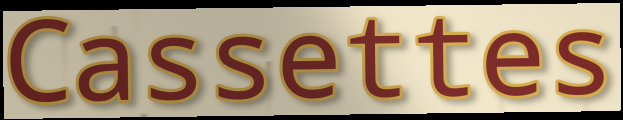
Cassettes